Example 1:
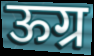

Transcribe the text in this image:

ऊग्र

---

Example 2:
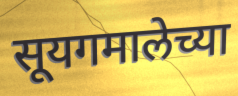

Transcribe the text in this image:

सूयगमालेच्या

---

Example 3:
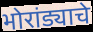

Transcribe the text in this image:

भोरांड्याचे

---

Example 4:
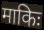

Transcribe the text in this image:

माकिः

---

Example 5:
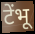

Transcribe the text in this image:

टेंभू